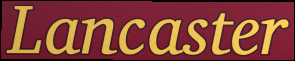
Lancaster